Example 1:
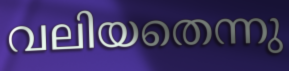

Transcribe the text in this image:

വലിയതെന്നു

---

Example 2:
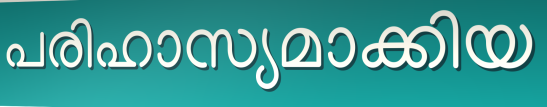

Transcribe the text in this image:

പരിഹാസ്യമാക്കിയ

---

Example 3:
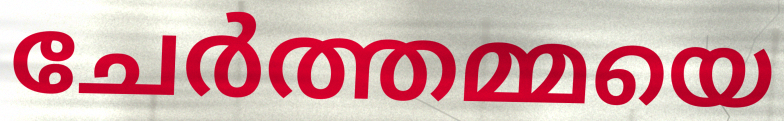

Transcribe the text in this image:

ചേർത്തമ്മയെ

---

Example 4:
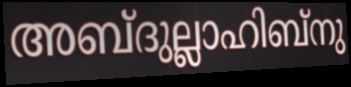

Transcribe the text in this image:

അബ്ദുല്ലാഹിബ്നു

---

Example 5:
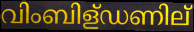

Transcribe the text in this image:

വിംബിള്ഡണില്